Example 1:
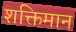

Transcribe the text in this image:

शक्तिमान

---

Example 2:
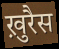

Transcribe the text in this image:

ख़ुरैस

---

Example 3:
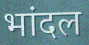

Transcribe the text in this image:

भांदल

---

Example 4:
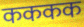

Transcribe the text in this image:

कककक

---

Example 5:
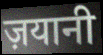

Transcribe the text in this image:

ज़यानी